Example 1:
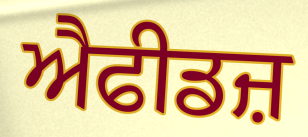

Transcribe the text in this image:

ਐਫੀਡਜ਼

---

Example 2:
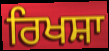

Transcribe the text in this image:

ਰਿਖਸ਼ਾ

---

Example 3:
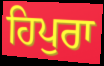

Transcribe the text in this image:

ਹਿਪੁਰਾ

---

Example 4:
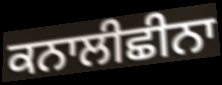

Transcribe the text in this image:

ਕਨਾਲੀਛੀਨਾ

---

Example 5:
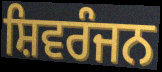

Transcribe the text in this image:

ਸ਼ਿਵਰੰਜਨ